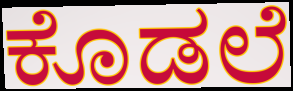
ಕೊಡಲೆ